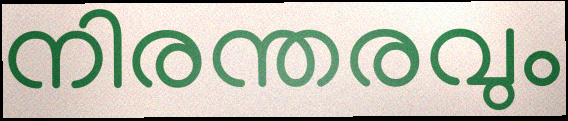
നിരന്തരവും